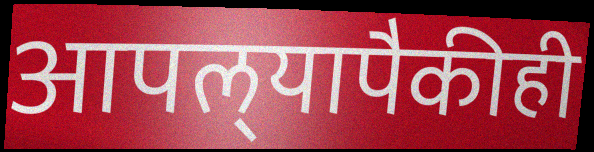
आपल्यापैकीही